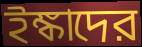
ইঙ্কাদের